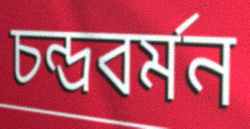
চন্দ্রবর্মন